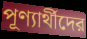
পূণ্যার্থীদের